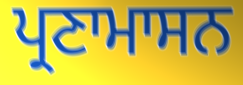
ਪ੍ਰਣਾਮਾਸਨ